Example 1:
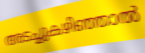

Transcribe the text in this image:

അടച്ചുകഴിഞ്ഞാൽ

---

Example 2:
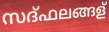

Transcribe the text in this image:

സദ്ഫലങ്ങള്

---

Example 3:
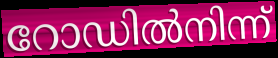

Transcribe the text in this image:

റോഡിൽനിന്ന്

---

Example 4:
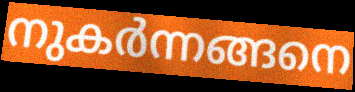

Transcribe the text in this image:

നുകർന്നങ്ങനെ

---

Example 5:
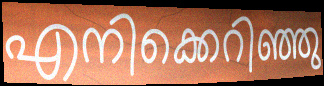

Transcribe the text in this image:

എനിക്കെറിഞ്ഞു